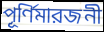
পূর্ণিমারজনী